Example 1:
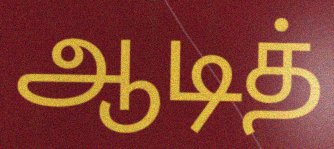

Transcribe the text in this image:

ஆடித்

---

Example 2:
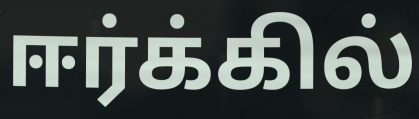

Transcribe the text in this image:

ஈர்க்கில்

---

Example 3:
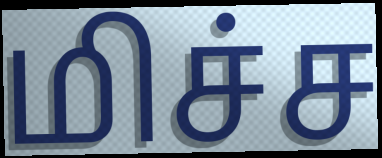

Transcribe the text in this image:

மிச்ச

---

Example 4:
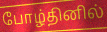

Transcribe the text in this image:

போழ்தினில்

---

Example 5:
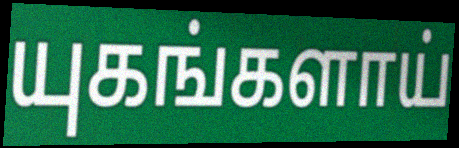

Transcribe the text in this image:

யுகங்களாய்